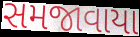
સમજાવાયા